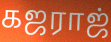
கஜராஜ்